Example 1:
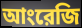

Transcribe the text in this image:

আংরেজি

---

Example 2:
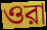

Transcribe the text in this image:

ওরা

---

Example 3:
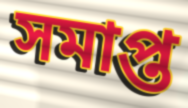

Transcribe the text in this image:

সমাপ্ত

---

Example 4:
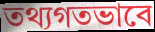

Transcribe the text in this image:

তথ্যগতভাবে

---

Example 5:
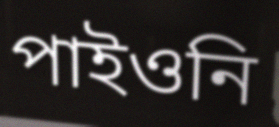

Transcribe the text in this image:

পাইওনি